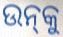
ଉନ୍‌କୁ